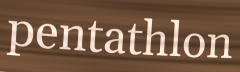
pentathlon